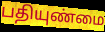
பதியுண்மை